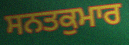
ਸਨਤਕੁਮਾਰ